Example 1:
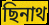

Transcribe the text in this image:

ছিনাথ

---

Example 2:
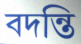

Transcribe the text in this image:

বদন্তি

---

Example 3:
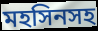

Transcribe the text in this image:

মহসিনসহ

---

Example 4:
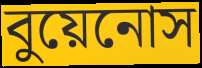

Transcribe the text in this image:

বুয়েনোস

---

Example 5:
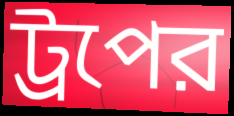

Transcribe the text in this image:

ট্রপের